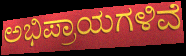
ಅಭಿಪ್ರಾಯಗಳಿವೆ